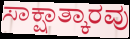
ಸಾಕ್ಷಾತ್ಕಾರವು